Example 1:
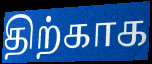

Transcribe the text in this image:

திற்காக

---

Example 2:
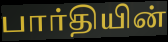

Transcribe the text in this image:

பார்தியின்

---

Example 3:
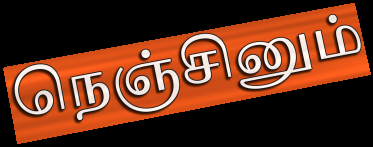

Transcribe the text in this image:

நெஞ்சினும்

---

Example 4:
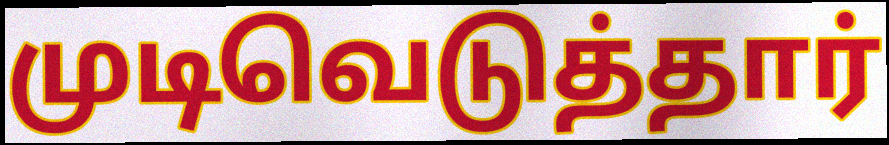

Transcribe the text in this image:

முடிவெடுத்தார்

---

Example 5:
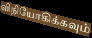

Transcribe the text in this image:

விநியோகிக்கவும்